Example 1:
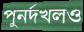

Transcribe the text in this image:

পুনর্দখলও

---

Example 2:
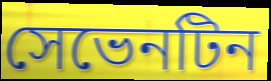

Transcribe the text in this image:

সেভেনটিন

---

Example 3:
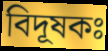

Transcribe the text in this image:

বিদূষকঃ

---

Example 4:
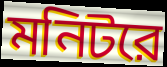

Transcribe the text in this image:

মনিটরে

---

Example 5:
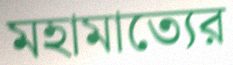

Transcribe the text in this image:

মহামাত্যের